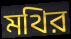
মথির